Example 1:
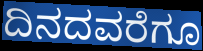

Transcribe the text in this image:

ದಿನದವರೆಗೂ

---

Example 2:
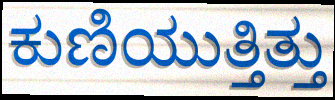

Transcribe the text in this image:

ಕುಣಿಯುತ್ತಿತ್ತು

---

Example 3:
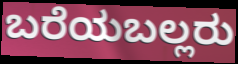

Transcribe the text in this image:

ಬರೆಯಬಲ್ಲರು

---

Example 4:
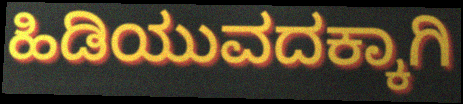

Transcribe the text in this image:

ಹಿಡಿಯುವದಕ್ಕಾಗಿ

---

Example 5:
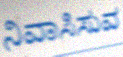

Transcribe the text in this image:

ನಿವಾಸಿಸುವ